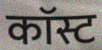
कॉस्ट